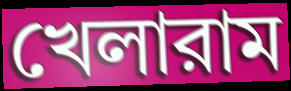
খেলারাম